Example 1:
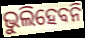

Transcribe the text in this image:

ଭୁଲିହେବନି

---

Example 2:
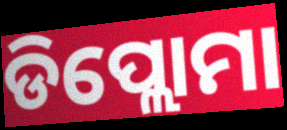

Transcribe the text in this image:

ଡିପ୍ଲୋମା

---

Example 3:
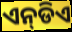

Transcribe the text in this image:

ଏନ୍‌ଡିଏ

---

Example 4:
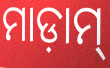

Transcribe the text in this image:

ମାଡ଼ାମ୍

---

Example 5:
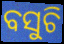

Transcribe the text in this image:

ବସୁଚି